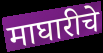
माघारीचे